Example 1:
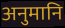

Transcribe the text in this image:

अनुमानि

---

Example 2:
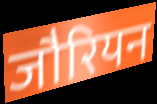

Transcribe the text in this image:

जौरियन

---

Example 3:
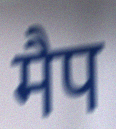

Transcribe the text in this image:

मैप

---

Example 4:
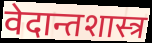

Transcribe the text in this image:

वेदान्तशास्त्र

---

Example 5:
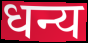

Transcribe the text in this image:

धन्य